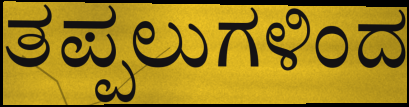
ತಪ್ಪಲುಗಳಿಂದ